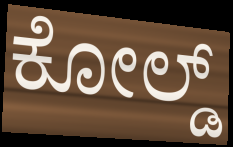
ಕೋಲ್ಡ್